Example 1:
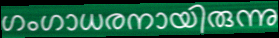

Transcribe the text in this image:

ഗംഗാധരനായിരുന്നു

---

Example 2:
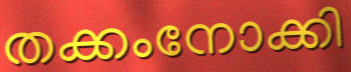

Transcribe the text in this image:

തക്കംനോക്കി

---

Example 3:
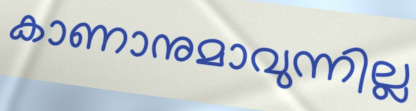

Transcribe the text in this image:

കാണാനുമാവുന്നില്ല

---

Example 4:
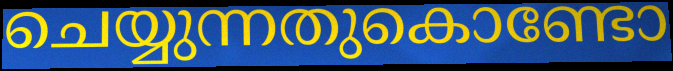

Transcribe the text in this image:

ചെയ്യുന്നതുകൊണ്ടോ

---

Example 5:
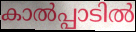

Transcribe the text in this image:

കാൽപ്പാടിൽ